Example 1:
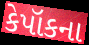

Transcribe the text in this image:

કેપૉકના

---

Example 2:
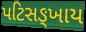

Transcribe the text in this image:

પટિસઙ્ખાય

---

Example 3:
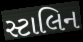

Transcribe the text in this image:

સ્ટાલિન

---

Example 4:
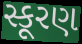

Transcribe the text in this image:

સ્કૂરણ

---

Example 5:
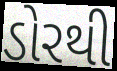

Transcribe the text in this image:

ડોરથી